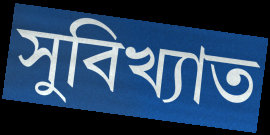
সুবিখ্যাত